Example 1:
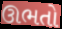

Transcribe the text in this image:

ઊભતો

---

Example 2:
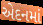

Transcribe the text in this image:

એદનમાં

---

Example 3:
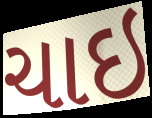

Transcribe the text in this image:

ચાઇ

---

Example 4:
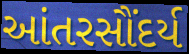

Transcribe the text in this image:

આંતરસૌંદર્ય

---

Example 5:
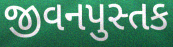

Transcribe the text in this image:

જીવનપુસ્તક